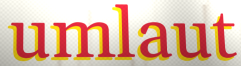
umlaut